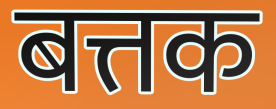
बत्तक